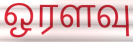
ஒரளவு